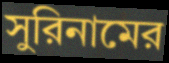
সুরিনামের